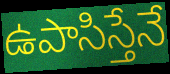
ఉపాసిస్తేనే